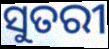
ସୁତରୀ